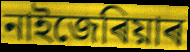
নাইজেৰিয়াৰ